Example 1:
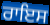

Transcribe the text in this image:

ਰਾਇਸ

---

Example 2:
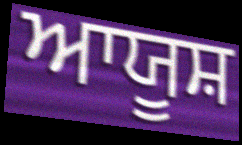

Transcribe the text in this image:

ਆਯੂਸ਼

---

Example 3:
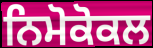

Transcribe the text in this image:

ਨਿਮੋਕੋਕਲ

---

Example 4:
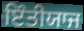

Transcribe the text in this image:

ਇੰਤੀਯਾਜ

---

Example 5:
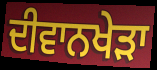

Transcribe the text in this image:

ਦੀਵਾਨਖੇੜਾ